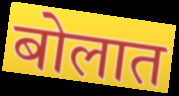
बोलात